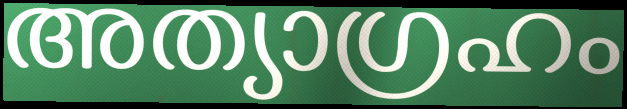
അത്യാഗ്രഹം